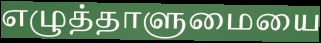
எழுத்தாளுமையை